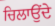
ਚਿਲਾਉਂਦੇ